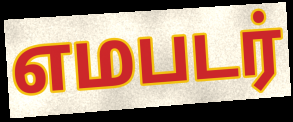
எமபடர்